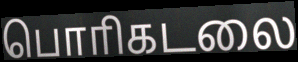
பொரிகடலை